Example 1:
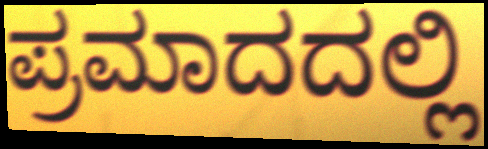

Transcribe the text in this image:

ಪ್ರಮಾದದಲ್ಲಿ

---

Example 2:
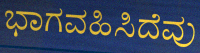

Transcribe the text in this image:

ಭಾಗವಹಿಸಿದೆವು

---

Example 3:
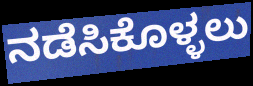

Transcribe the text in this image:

ನಡೆಸಿಕೊಳ್ಳಲು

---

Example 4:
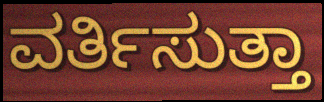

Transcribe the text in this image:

ವರ್ತಿಸುತ್ತಾ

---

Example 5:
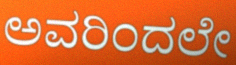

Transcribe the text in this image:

ಅವರಿಂದಲೇ